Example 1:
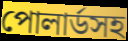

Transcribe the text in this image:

পোলার্ডসহ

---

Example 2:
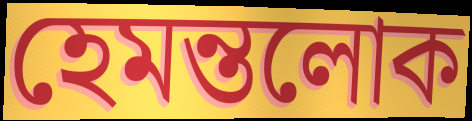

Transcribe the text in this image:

হেমন্তলোক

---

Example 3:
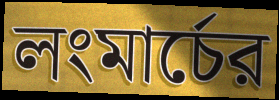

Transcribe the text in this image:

লংমার্চের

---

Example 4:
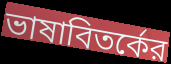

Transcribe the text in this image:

ভাষাবিতর্কের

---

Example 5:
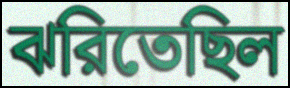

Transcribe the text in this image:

ঝরিতেছিল